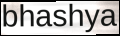
bhashya